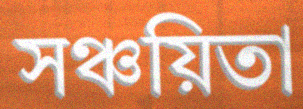
সঞ্চয়িতা